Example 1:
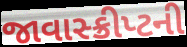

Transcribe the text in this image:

જાવાસ્ક્રીપ્ટની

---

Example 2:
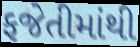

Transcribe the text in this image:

ફજેતીમાંથી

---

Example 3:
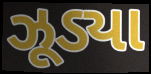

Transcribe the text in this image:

ઝૂડ્યા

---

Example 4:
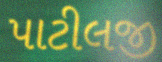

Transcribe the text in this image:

પાટીલજી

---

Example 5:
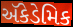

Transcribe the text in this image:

ઍકેડેમિક